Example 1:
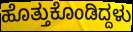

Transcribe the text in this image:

ಹೊತ್ತುಕೊಂಡಿದ್ದಳು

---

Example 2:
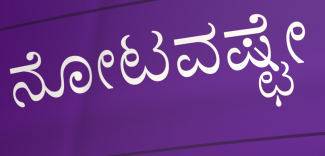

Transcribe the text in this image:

ನೋಟವಷ್ಟೇ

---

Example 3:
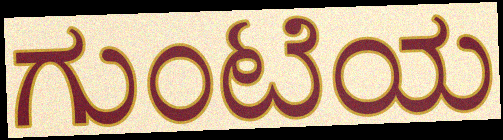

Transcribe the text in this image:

ಗುಂಟೆಯ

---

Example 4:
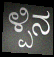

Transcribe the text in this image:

ಳ್ಪಿನ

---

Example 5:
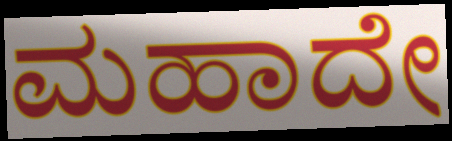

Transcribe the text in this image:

ಮಹಾದೇ